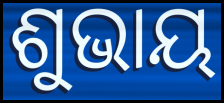
ଶୁଭାୟ